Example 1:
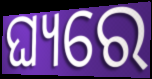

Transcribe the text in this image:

ଘ୍ୟରେ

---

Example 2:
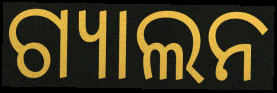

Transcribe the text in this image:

ଗ୍ୟାଲନ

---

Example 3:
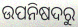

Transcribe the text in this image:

ଉପନିଷଦରୁ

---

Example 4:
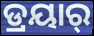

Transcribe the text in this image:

ଡ୍ରୟାର୍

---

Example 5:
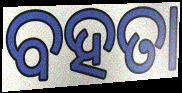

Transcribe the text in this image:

ବହତା